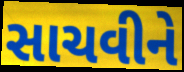
સાચવીને